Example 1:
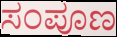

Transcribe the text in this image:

ಸಂಪೂಣ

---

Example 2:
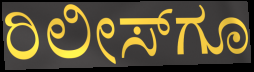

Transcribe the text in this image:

ರಿಲೀಸ್‌ಗೂ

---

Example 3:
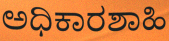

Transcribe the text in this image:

ಅಧಿಕಾರಶಾಹಿ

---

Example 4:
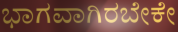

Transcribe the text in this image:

ಭಾಗವಾಗಿರಬೇಕೇ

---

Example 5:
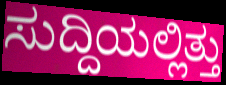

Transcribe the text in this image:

ಸುದ್ದಿಯಲ್ಲಿತ್ತು